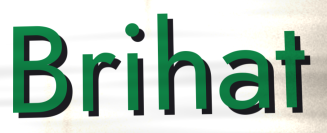
Brihat